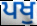
ਪਖੁ